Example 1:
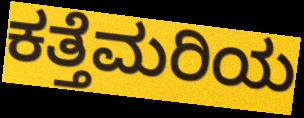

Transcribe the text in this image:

ಕತ್ತೆಮರಿಯ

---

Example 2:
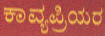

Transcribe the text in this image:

ಕಾವ್ಯಪ್ರಿಯರ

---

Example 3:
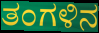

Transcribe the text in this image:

ತಂಗಳಿನ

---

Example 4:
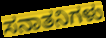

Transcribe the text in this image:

ಸನಾತನಿಗಳು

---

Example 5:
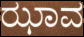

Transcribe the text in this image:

ಝಾವ